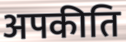
अपकीति